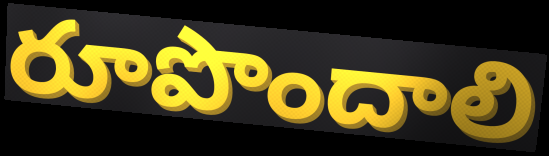
రూపొందాలి